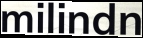
milindn